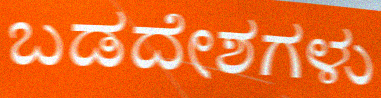
ಬಡದೇಶಗಳು